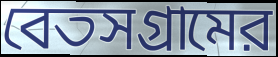
বেতসগ্রামের